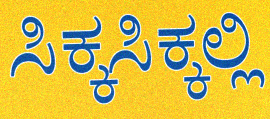
ಸಿಕ್ಕಸಿಕ್ಕಲ್ಲಿ